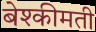
बेश्कीमती